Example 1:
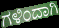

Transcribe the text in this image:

ಗಳಿಂದಾಗಿ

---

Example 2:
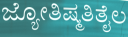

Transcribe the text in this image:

ಜ್ಯೋತಿಷ್ಮತಿತೈಲ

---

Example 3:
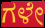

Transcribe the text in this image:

ಗಳೇ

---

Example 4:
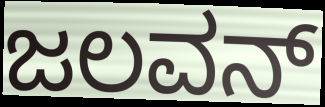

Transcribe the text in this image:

ಜಲವನ್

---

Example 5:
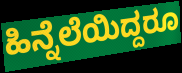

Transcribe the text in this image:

ಹಿನ್ನೆಲೆಯಿದ್ದರೂ